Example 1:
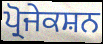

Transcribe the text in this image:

ਪ੍ਰੋਜੇਕਸ਼ਨ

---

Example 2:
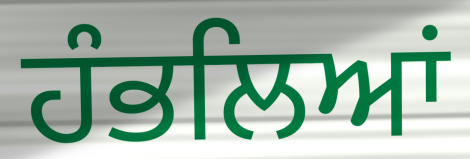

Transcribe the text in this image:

ਹੰਭਲਿਆਂ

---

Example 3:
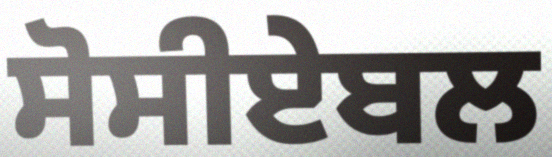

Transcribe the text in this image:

ਸੋਸੀਏਬਲ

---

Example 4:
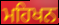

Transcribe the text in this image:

ਮਹਿਖਨ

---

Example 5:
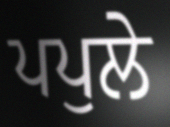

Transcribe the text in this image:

ਪਪੁਲੇ